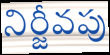
నిర్జీవపు